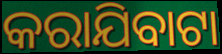
କରାଯିବାଟା